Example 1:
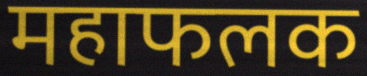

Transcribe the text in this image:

महाफलक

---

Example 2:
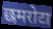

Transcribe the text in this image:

छमरोटा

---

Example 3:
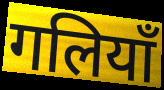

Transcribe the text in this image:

गलियाँ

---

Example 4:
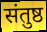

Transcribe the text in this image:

संतुष्ठ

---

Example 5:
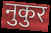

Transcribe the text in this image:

नुकुर